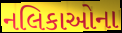
નલિકાઓના